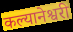
कल्यानेश्वरी